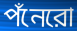
পঁনেরো